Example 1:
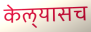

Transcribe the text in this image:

केल्यासच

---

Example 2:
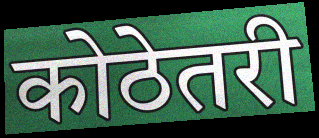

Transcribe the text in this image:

कोठेतरी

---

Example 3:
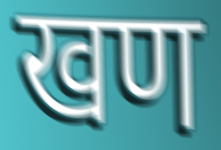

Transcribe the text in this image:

खण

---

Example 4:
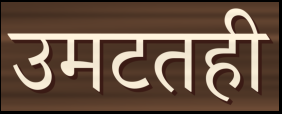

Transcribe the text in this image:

उमटतही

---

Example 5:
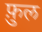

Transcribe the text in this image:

फ़ुल